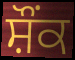
ਸ਼ੌਂਕ